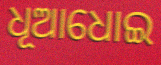
ଧୂଆଧୋଇ